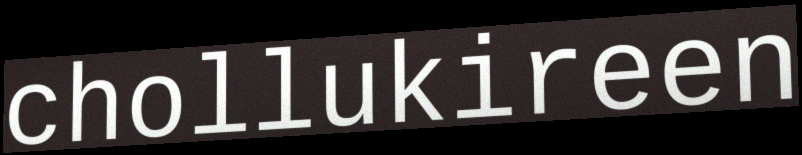
chollukireen